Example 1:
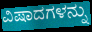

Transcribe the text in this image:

ವಿಷಾದಗಳನ್ನು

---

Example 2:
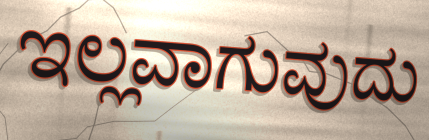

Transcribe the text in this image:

ಇಲ್ಲವಾಗುವುದು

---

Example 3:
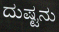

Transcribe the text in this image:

ದುಷ್ಟನು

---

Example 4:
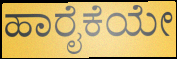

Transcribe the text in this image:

ಹಾರೈಕೆಯೇ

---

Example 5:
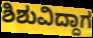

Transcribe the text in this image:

ಶಿಶುವಿದ್ದಾಗ